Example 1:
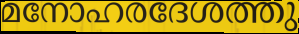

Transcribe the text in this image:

മനോഹരദേശത്തു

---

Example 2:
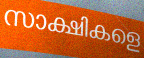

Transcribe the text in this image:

സാക്ഷികളെ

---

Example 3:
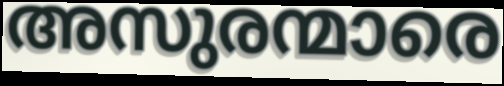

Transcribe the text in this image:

അസുരന്മാരെ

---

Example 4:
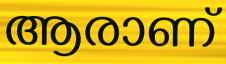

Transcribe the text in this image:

ആരാണ്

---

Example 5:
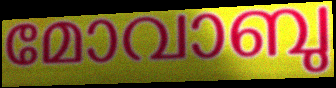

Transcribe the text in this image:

മോവാബു